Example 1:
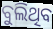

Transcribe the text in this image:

ବୁଲିଥିବ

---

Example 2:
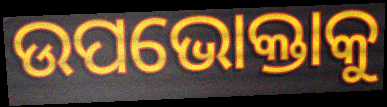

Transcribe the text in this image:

ଉପଭୋକ୍ତାକୁ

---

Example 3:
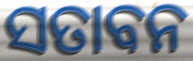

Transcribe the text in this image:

ସତାବନ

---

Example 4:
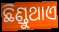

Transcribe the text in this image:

ଛିଣ୍ଡୁଥାଏ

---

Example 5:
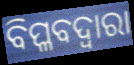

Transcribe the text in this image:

ବିପ୍ଳବଦ୍ୱାରା